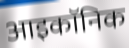
आइकॉनिक